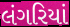
લંગરિયાં